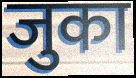
जुका